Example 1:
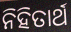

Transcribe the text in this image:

ନିହିତାର୍ଥ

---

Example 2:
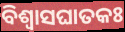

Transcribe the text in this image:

ବିଶ୍ୱାସଘାତକଃ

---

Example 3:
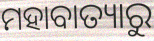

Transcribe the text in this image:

ମହାବାତ୍ୟାରୁ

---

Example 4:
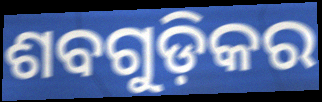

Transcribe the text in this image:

ଶବଗୁଡ଼ିକର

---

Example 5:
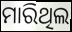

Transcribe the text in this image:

ମାରିଥିଲ